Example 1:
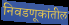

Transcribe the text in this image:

निवडणूकांतील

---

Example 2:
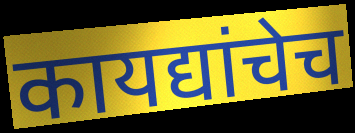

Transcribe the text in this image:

कायद्यांचेच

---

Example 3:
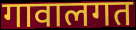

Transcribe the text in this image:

गावालगत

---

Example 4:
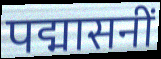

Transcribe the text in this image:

पद्मासनीं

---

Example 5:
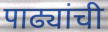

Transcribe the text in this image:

पाढ्यांची